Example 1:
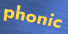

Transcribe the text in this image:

phonic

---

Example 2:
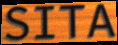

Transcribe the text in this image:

SITA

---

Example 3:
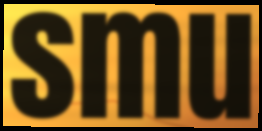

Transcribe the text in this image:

smu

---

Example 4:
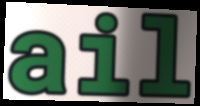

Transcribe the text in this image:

ail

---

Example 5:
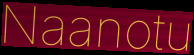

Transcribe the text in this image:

Naanotu